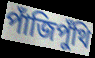
পাঁজিপুঁথি